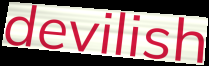
devilish